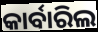
କାର୍ବାରିଲ